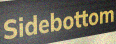
Sidebottom